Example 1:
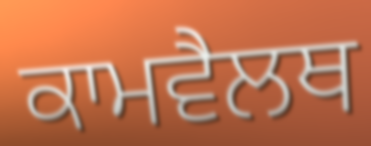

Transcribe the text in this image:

ਕਾਮਵੈਲਥ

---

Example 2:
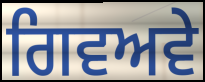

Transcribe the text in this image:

ਗਿਵਅਵੇ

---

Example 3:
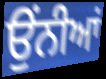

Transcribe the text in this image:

ਉੰਨੀਆਂ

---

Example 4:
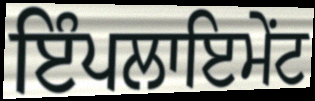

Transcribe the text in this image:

ਇੰਪਲਾਇਮੇਂਟ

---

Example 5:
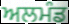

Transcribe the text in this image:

ਅਲਮੰਡ